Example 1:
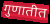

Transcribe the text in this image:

गुणातीत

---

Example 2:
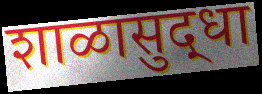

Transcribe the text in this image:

शाळासुद्धा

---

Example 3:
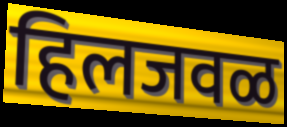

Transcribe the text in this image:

हिलजवळ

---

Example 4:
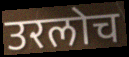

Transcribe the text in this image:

उरलोच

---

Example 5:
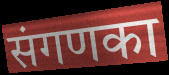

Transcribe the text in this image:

संगणका